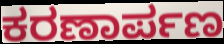
ಕರಣಾರ್ಪಣ